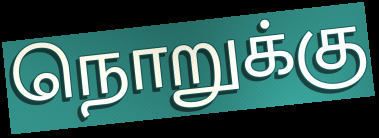
நொறுக்கு